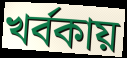
খর্বকায়